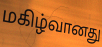
மகிழ்வானது